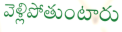
వెళ్లిపోతుంటారు